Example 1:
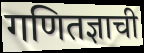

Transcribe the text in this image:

गणितज्ञाची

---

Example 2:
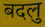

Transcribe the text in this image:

बदलु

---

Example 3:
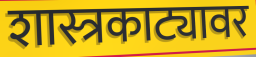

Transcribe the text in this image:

शास्त्रकाट्यावर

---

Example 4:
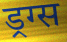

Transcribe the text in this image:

ड्रग्स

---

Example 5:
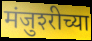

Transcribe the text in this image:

मंजुश्रीच्या